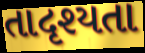
તાદૃશ્યતા